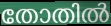
തോതിൽ